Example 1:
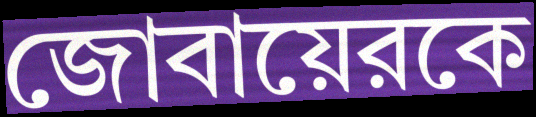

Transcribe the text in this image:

জোবায়েরকে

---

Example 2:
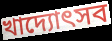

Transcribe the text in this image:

খাদ্যোৎসব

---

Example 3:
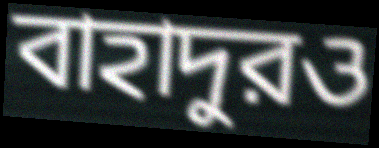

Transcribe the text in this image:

বাহাদুরও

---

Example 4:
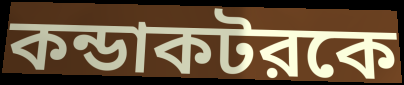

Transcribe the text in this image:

কন্ডাকটরকে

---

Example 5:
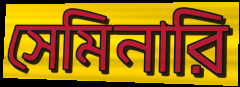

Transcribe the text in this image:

সেমিনারি